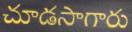
చూడసాగారు